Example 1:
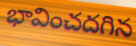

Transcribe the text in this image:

భావించదగిన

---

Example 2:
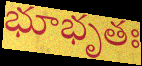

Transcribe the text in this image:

భూభృతః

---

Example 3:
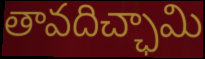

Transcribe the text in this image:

తావదిచ్ఛామి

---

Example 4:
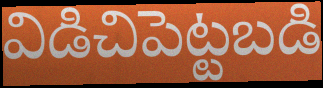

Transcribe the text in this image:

విడిచిపెట్టబడి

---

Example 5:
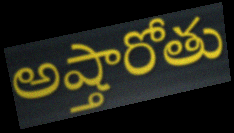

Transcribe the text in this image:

అష్తారోతు